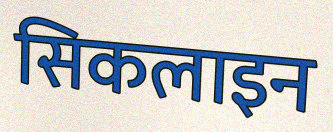
सिकलाइन